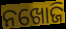
ନଖୋଜି